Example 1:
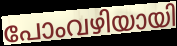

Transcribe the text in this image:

പോംവഴിയായി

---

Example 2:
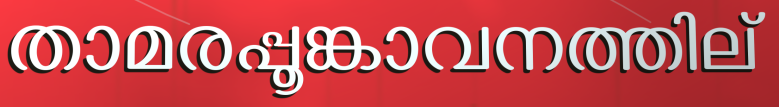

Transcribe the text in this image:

താമരപ്പൂങ്കാവനത്തില്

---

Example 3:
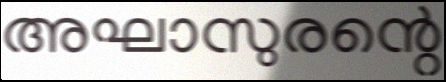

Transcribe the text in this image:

അഘാസുരന്റെ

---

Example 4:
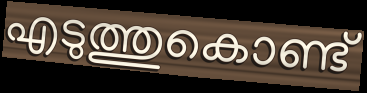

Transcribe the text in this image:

എടുത്തുകൊണ്ട്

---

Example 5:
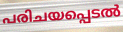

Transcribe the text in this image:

പരിചയപ്പെടൽ